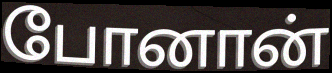
போனான்